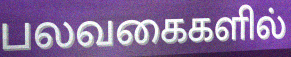
பலவகைகளில்